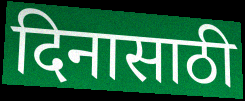
दिनासाठी